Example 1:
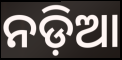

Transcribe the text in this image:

ନଡ଼ିଆ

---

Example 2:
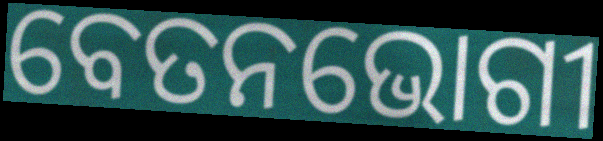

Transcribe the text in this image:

ବେତନଭୋଗୀ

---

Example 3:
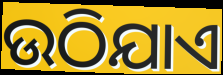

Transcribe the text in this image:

ଉଠିଯାଏ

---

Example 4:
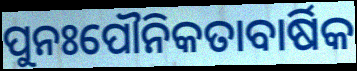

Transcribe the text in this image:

ପୁନଃପୌନିକତାବାର୍ଷିକ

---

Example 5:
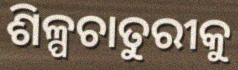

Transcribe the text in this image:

ଶିଳ୍ପଚାତୁରୀକୁ